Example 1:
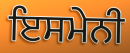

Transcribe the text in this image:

ਇਸਮੇਨੀ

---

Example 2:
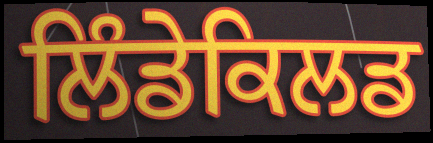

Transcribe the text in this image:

ਲਿੰਡੇਕਿਲਡ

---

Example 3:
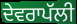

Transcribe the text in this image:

ਦੇਵਰਾਪੱਲੀ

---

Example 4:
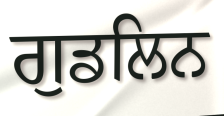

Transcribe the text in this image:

ਗੁਡਲਿਨ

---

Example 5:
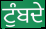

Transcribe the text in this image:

ਟੁੰਬਦੇ